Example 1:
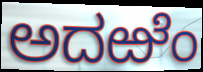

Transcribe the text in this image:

ಅದಱೆಂ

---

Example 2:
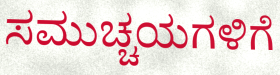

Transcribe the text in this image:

ಸಮುಚ್ಚಯಗಳಿಗೆ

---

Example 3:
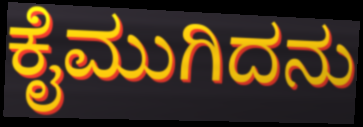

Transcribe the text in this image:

ಕೈಮುಗಿದನು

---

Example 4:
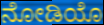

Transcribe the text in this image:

ನೋಡಿಯೊ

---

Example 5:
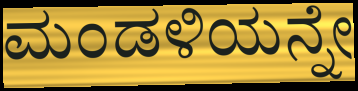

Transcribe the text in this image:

ಮಂಡಳಿಯನ್ನೇ